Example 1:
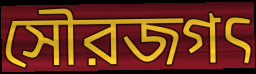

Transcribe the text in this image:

সৌরজগৎ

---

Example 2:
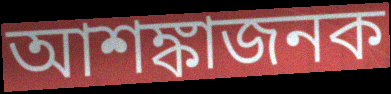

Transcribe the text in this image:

আশঙ্কাজনক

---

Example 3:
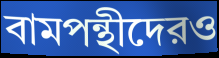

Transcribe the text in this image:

বামপন্থীদেরও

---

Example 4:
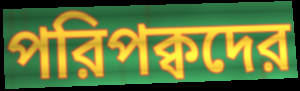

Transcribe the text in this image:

পরিপক্বদের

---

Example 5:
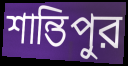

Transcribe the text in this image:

শান্তিপুর